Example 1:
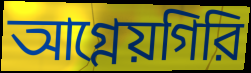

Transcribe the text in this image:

আগ্নেয়গিরি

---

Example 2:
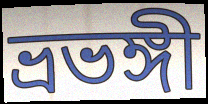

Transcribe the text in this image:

ভ্রভঙ্গী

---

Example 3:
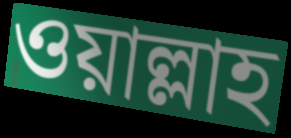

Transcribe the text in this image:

ওয়াল্লাহ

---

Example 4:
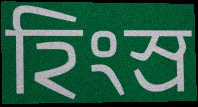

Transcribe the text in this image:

হিংস্র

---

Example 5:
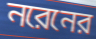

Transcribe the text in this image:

নরেনের